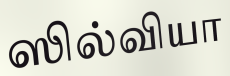
ஸில்வியா